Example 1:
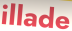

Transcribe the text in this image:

illade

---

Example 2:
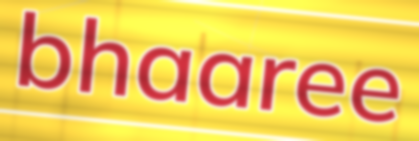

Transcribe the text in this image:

bhaaree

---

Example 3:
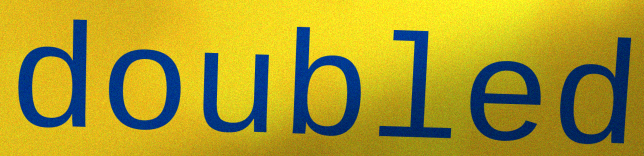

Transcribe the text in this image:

doubled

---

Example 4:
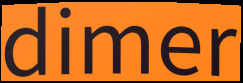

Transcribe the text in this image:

dimer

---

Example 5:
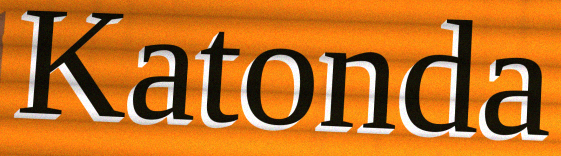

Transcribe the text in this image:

Katonda